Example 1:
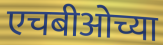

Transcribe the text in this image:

एचबीओच्या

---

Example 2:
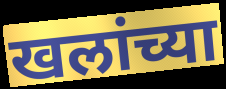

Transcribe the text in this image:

खलांच्या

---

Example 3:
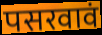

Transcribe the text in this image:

पसरवावं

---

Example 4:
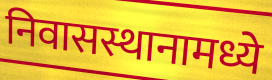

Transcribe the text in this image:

निवासस्थानामध्ये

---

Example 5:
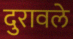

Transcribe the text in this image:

दुरावले